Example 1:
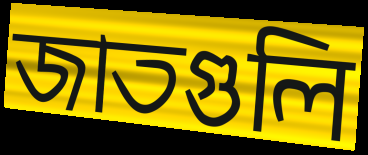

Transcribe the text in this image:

জাতগুলি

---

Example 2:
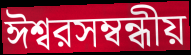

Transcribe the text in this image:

ঈশ্বরসম্বন্ধীয়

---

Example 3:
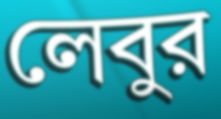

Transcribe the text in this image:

লেবুর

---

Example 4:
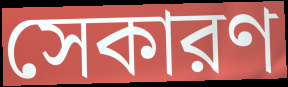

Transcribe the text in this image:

সেকারণ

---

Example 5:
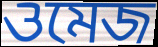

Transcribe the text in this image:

ওমেজ